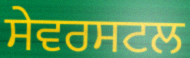
ਸੇਵਰਸਟਲ